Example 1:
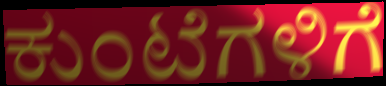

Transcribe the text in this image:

ಕುಂಟೆಗಳಿಗೆ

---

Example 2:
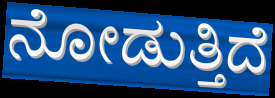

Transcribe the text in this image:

ನೋಡುತ್ತಿದೆ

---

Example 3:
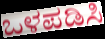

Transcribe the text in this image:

ಒಳಪಡಿಸಿ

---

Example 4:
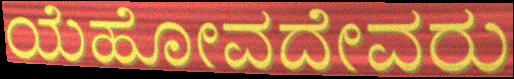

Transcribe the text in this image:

ಯೆಹೋವದೇವರು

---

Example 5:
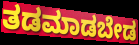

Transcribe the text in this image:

ತಡಮಾಡಬೇಡ